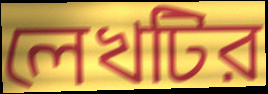
লেখটির